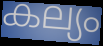
കല്യം